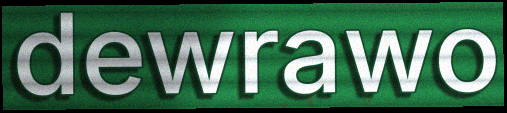
dewrawo